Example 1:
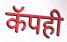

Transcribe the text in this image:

कॅपही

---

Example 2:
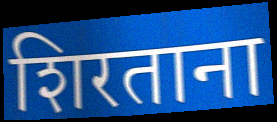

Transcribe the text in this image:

शिरताना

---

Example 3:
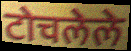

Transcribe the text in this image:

टोचलेले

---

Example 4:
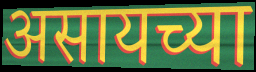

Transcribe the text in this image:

असायच्या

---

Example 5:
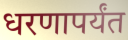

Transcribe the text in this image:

धरणापर्यंत